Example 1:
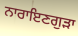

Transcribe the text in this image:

ਨਾਰਾਇਣਗੁੜਾ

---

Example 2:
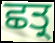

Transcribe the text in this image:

ਛਤ੍ਰ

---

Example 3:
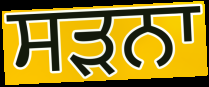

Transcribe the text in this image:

ਸੜਨਾ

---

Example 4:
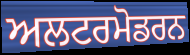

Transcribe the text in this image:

ਅਲਟਰਮੋਡਰਨ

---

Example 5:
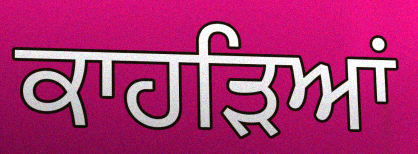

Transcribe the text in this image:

ਕਾਹੜਿਆਂ